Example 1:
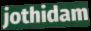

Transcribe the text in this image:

jothidam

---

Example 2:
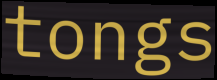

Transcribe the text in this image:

tongs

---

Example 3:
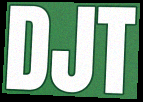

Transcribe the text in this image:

DJT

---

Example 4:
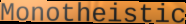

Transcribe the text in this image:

Monotheistic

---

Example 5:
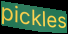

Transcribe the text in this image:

pickles